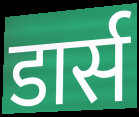
डार्स